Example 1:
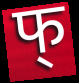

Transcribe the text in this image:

फ्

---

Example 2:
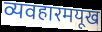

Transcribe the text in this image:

व्यवहारमयूख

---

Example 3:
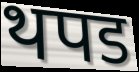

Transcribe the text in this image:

थपड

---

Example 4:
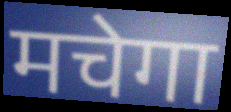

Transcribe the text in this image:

मचेगा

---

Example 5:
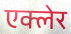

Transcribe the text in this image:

एक्लेर